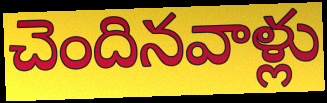
చెందినవాళ్లు